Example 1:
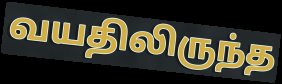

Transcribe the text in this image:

வயதிலிருந்த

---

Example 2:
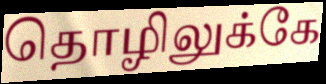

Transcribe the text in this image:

தொழிலுக்கே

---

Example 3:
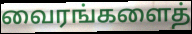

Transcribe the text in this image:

வைரங்களைத்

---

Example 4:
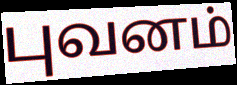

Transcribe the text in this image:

புவனம்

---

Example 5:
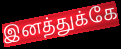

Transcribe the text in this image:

இனத்துக்கே